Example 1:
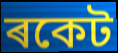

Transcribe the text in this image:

ৰকেট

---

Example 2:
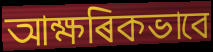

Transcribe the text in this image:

আক্ষৰিকভাবে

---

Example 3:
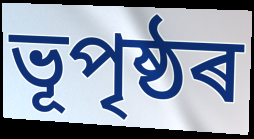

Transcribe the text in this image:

ভূপৃষ্ঠৰ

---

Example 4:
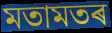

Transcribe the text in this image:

মতামতৰ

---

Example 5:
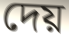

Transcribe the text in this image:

দেয়